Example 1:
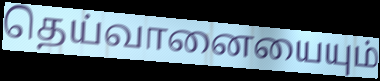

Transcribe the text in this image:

தெய்வானையையும்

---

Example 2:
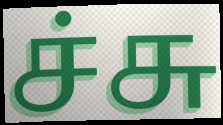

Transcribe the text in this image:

ச்சு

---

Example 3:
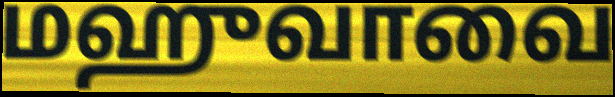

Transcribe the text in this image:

மஹுவாவை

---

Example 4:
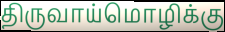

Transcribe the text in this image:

திருவாய்மொழிக்கு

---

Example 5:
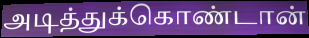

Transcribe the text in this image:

அடித்துக்கொண்டான்